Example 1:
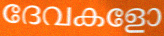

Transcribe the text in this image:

ദേവകളോ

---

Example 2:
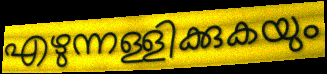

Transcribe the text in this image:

എഴുന്നള്ളിക്കുകയും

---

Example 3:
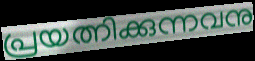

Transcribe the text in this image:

പ്രയത്നിക്കുന്നവനു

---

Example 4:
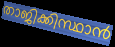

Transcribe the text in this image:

താജിക്കിസ്ഥാൻ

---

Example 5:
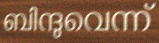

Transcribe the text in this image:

ബിന്ദുവെന്ന്